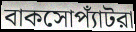
বাকসোপ্যাঁটরা